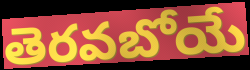
తెరవబోయే